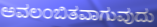
ಅವಲಂಬಿತವಾಗುವುದು